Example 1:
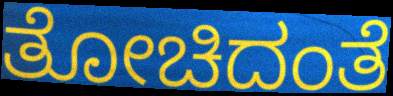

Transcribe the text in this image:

ತೋಚಿದಂತೆ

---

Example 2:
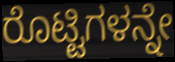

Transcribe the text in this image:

ರೊಟ್ಟಿಗಳನ್ನೇ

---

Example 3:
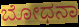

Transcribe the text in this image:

ಬೋಧನಾ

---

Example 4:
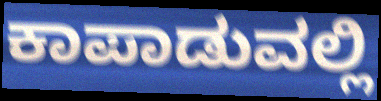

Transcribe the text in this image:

ಕಾಪಾಡುವಲ್ಲಿ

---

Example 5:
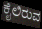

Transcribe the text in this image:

ಕೈಲಿರುವ